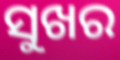
ସୁଖର